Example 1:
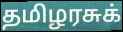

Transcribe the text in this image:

தமிழரசுக்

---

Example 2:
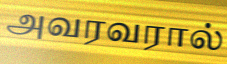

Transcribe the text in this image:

அவரவரால்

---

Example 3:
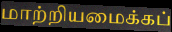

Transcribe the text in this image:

மாற்றியமைக்கப்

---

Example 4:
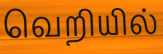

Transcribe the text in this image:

வெறியில்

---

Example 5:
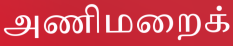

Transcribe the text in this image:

அணிமறைக்